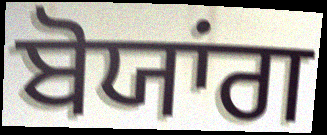
ਬੋਯਾਂਗ